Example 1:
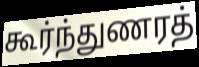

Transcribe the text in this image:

கூர்ந்துணரத்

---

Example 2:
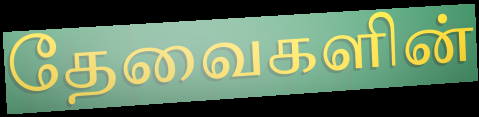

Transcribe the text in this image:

தேவைகளின்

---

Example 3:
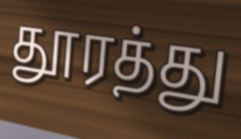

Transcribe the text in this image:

தூரத்து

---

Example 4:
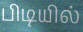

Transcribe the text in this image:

பிடியில்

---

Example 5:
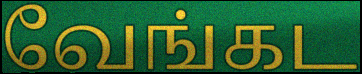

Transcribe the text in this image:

வேங்கட